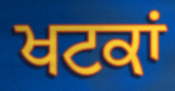
ਖਟਕਾਂ